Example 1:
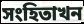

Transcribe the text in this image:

সংহিতাখন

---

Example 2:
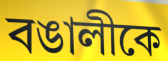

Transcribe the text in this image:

বঙালীকে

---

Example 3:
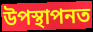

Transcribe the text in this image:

উপস্থাপনত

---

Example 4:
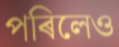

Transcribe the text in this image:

পৰিলেও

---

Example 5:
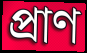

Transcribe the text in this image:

প্ৰাণ